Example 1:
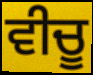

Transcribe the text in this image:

ਵੀਚੂ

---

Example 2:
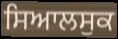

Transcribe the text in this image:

ਸਿਆਲਸੁਕ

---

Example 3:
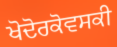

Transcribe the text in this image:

ਖੋਦੋਰਕੋਵਸਕੀ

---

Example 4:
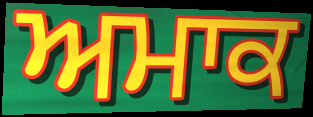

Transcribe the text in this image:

ਅਮਾਕ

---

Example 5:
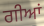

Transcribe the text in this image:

ਗੀਆਂ